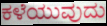
ಕಳೆಯುವುದು